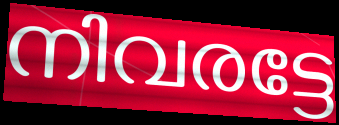
നിവരട്ടേ